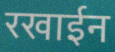
रखाईन